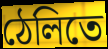
ঠেলিতে